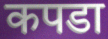
कपडा